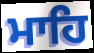
ਮਾਹਿ